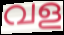
വള